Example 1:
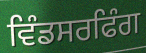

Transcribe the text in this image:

ਵਿੰਡਸਰਫਿੰਗ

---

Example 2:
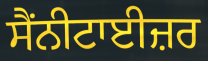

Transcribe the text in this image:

ਸੈਂਨੀਟਾਈਜ਼ਰ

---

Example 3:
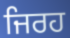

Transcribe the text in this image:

ਜਿਰਹ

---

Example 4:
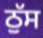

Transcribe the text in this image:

ਠੁੱਸ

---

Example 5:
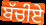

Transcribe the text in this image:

ਬੱਚੀਏ